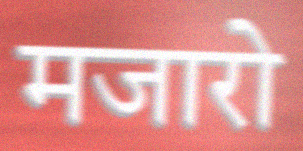
मजारो